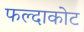
फल्दाकोट